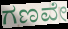
ಗಣವೇ